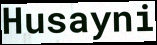
Husayni